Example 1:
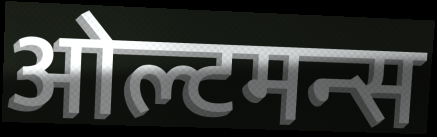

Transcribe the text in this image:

ओल्टमन्स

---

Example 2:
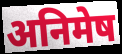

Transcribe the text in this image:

अनिमेष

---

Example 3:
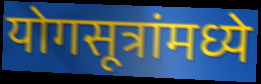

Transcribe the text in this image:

योगसूत्रांमध्ये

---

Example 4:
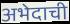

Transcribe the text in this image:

अभेदाची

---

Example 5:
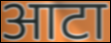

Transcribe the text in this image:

आटा